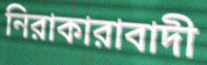
নিরাকারাবাদী